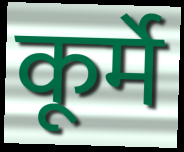
कूर्मे